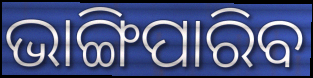
ଭାଙ୍ଗିପାରିବ